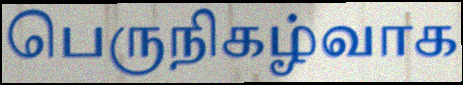
பெருநிகழ்வாக